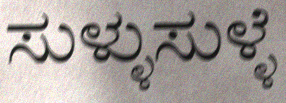
ಸುಳ್ಳುಸುಳ್ಳೆ